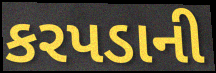
કરપડાની